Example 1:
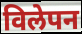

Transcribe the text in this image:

विलेपन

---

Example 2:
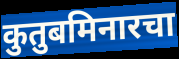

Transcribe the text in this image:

कुतुबमिनारचा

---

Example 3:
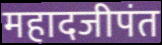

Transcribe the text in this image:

महादजीपंत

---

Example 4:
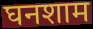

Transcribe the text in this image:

घनशाम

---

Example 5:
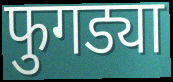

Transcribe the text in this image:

फुगड्या